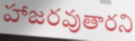
హాజరవుతారని